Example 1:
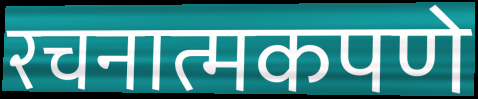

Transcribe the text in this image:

रचनात्मकपणे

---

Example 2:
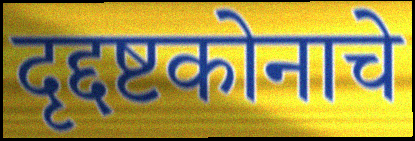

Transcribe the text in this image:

दृद्दष्टकोनाचे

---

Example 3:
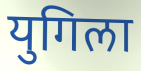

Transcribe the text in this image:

युगिला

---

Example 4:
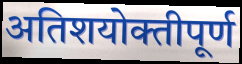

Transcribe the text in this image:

अतिशयोक्तीपूर्ण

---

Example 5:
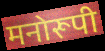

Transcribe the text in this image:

मनोरूपी